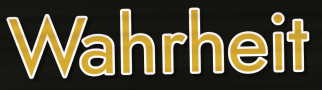
Wahrheit